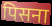
पिसना